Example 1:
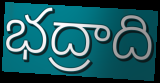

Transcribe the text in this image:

భద్రాది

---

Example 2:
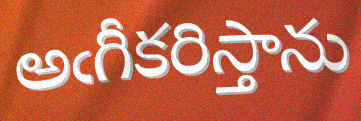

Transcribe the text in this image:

అఁగీకరిస్తాను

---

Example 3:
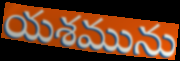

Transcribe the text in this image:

యశమును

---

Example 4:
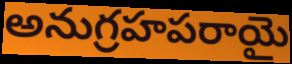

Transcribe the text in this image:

అనుగ్రహపరాయై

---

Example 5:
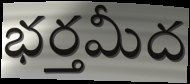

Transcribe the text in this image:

భర్తమీద